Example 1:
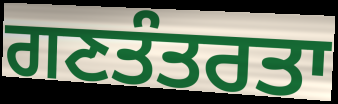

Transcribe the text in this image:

ਗਣਤੰਤਰਤਾ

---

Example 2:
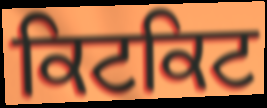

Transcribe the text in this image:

ਕਿਟਕਿਟ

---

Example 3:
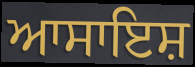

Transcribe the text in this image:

ਆਸਾਇਸ਼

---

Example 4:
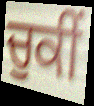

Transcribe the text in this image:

ਚੁਕੀਂ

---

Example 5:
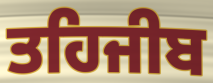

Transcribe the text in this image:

ਤਹਿਜੀਬ